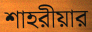
শাহরীয়ার